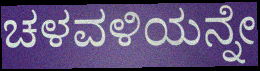
ಚಳವಳಿಯನ್ನೇ